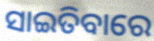
ସାଇତିବାରେ